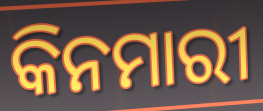
କିନମାରୀ